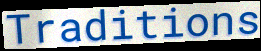
Traditions